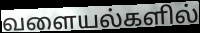
வளையல்களில்